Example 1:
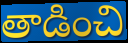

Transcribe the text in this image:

తాడించి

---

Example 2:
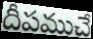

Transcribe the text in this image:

దీపముచే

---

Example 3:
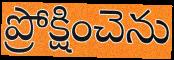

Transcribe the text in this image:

ప్రోక్షించెను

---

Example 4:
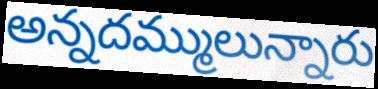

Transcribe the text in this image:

అన్నదమ్ములున్నారు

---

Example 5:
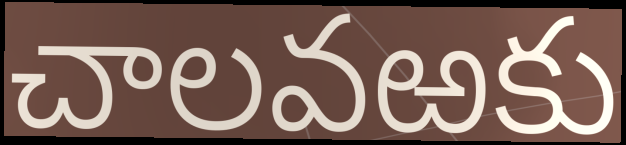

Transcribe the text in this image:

చాలవఱకు